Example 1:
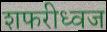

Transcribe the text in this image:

शफरीध्वज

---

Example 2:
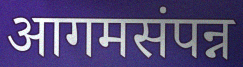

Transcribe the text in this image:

आगमसंपन्न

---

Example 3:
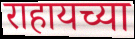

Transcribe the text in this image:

राहायच्या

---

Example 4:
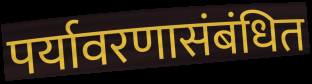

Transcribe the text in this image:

पर्यावरणासंबंधित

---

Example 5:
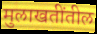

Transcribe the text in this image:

मुलाखतींतील